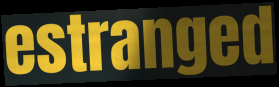
estranged